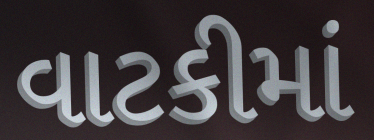
વાટકીમાં